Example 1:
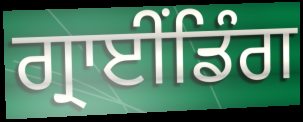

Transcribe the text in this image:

ਗ੍ਰਾਈਂਡਿੰਗ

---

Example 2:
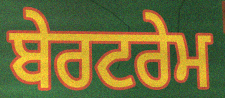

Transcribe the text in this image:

ਬੇਰਟਰੇਮ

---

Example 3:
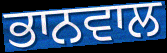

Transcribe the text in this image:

ਭਾਨਵਾਲ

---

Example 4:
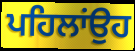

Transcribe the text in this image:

ਪਹਿਲਾਂਉਹ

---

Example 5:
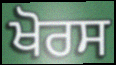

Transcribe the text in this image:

ਖੋਰਸ